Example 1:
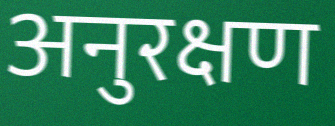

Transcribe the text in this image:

अनुरक्षण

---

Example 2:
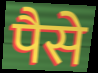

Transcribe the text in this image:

पैसे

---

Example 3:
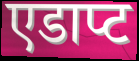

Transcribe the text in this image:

एडाप्ट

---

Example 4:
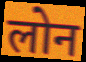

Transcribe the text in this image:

लोन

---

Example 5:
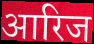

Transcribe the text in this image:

आरिज